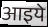
आइये